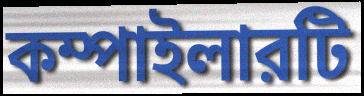
কম্পাইলারটি